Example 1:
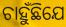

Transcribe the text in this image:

ଚାହୁଁଛିଯେ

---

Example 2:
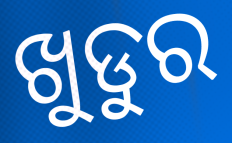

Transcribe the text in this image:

ଖୁଡୁର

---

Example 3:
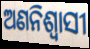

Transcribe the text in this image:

ଅଣନିଶ୍ୱାସୀ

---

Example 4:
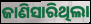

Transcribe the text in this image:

ଜାଣିସାରିଥିଲା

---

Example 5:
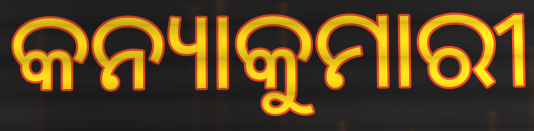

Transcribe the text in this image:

କନ୍ୟାକୁମାରୀ